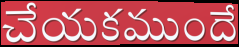
చేయకముందే